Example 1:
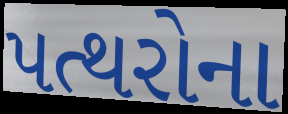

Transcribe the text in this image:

પત્થરોના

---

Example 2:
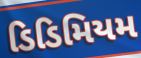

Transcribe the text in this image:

ડિડિમિયમ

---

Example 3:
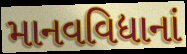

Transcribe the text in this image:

માનવવિદ્યાનાં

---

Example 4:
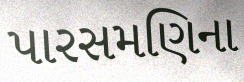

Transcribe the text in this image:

પારસમણિના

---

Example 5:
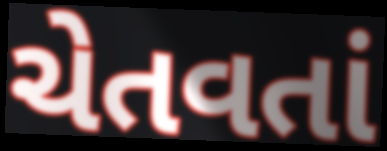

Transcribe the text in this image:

ચેતવતાં